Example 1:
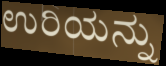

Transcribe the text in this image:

ಉರಿಯನ್ನು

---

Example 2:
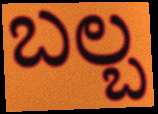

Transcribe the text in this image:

ಬಲ್ಬ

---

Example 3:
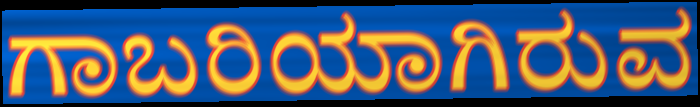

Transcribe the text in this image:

ಗಾಬರಿಯಾಗಿರುವ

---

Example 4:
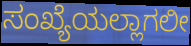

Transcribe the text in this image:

ಸಂಖ್ಯೆಯಲ್ಲಾಗಲೀ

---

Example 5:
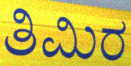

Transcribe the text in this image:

ತಿಮಿರ